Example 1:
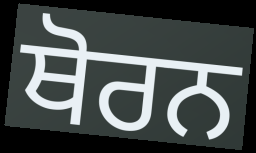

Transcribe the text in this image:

ਥੋਰਨ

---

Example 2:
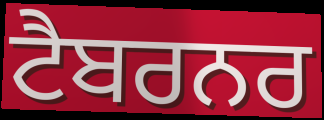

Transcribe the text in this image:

ਟੈਬਰਨਰ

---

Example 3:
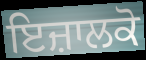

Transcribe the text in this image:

ਇਜ਼ਾਲਕੋ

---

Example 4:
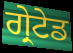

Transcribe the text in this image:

ਗ੍ਰੇਟੇਡ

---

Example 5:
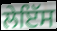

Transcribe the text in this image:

ਲੇਇੱਸ